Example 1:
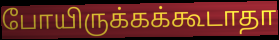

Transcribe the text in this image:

போயிருக்கக்கூடாதா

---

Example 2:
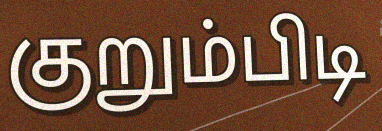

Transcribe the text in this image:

குறும்பிடி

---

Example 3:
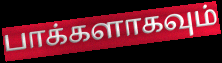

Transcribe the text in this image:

பாக்களாகவும்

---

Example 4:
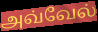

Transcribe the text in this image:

அவ்வேல்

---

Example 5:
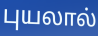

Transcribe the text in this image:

புயலால்